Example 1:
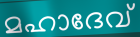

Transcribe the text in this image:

മഹാദേവ്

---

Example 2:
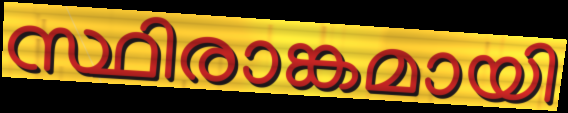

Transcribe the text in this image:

സ്ഥിരാങ്കമായി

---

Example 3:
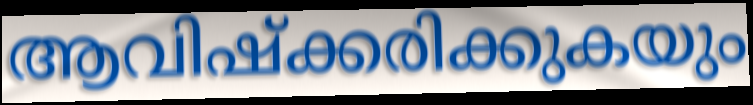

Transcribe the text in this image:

ആവിഷ്ക്കരിക്കുകയും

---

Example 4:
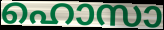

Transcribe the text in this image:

ഹൊസാ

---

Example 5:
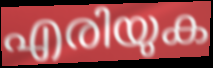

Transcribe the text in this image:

എരിയുക